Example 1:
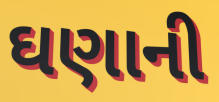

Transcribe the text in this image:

ઘણાની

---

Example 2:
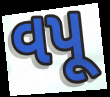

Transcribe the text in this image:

વપૂ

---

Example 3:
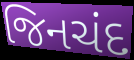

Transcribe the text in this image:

જિનચંદ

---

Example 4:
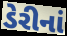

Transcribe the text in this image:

ડેરીનાં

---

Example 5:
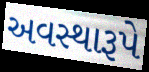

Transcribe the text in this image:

અવસ્થારૂપે